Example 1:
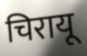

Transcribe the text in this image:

चिरायू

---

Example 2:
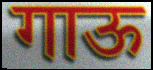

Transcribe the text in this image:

गाऊ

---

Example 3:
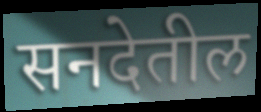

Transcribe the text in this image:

सनदेतील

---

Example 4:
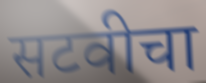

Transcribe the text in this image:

सटवीचा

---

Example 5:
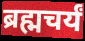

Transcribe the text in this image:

ब्रह्मचर्यं